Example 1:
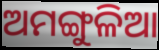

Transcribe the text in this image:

ଅମଙ୍ଗୁଳିଆ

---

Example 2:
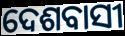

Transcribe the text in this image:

ଦେଶବାସୀ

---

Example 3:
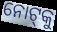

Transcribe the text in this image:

ନୋଟ୍‌କୁ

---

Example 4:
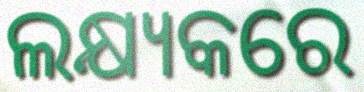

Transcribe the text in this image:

ଲକ୍ଷ୍ୟକରେ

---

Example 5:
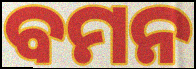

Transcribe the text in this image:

ବମନ